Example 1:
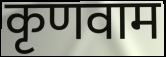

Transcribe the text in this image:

कृणवाम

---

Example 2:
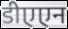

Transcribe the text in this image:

डीएएन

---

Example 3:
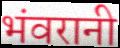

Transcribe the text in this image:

भंवरानी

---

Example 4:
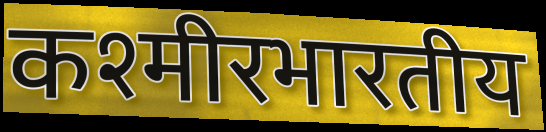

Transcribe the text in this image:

कश्मीरभारतीय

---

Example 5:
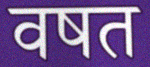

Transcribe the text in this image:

वषत